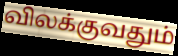
விலக்குவதும்